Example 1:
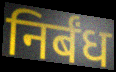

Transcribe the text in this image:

निर्बंध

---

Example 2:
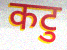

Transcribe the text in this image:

कटु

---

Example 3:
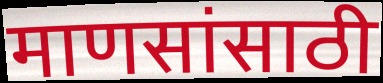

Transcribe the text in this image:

माणसांसाठी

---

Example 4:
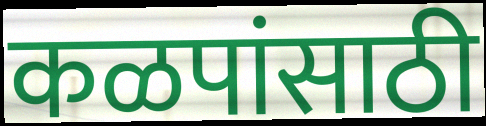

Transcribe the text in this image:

कळपांसाठी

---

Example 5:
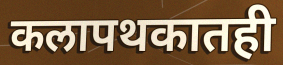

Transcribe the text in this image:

कलापथकातही